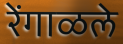
रेंगाळले